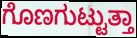
ಗೊಣಗುಟ್ಟುತ್ತಾ